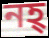
নহ্